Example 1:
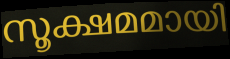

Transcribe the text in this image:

സൂക്ഷമമായി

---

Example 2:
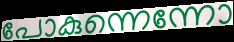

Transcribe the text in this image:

പോകുന്നെന്നോ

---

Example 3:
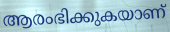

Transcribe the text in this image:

ആരംഭിക്കുകയാണ്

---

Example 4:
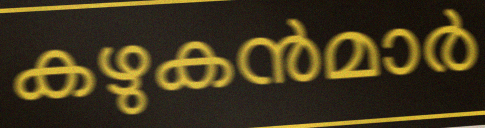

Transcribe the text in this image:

കഴുകൻമാർ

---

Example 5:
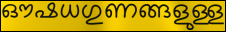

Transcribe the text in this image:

ഔഷധഗുണങ്ങളുള്ള